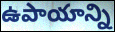
ఉపాయాన్ని